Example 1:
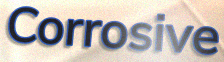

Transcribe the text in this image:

Corrosive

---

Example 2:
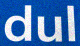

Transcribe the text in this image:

dul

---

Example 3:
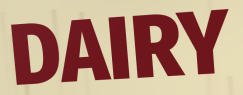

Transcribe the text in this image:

DAIRY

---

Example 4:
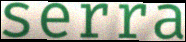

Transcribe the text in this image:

serra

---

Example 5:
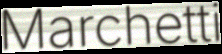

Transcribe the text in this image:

Marchetti